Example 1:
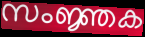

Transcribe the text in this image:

സംജ്ഞക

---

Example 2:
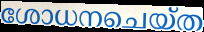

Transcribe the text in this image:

ശോധനചെയ്ത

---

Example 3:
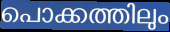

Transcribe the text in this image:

പൊക്കത്തിലും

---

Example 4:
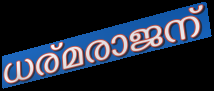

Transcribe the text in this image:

ധര്മരാജന്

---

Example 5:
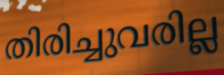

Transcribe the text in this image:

തിരിച്ചുവരില്ല